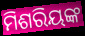
ମିଶରିୟଙ୍କ